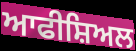
ਆਫੀਸ਼ਿਅਲ